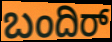
ಬಂದಿರ್